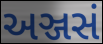
અઞ્જસં